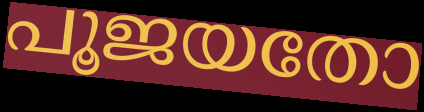
പൂജയതോ